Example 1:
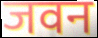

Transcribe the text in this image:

जवन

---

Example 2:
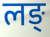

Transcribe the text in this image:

लङ्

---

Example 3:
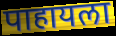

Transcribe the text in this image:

पाहायला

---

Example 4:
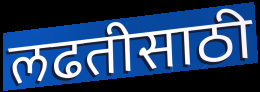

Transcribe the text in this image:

लढतीसाठी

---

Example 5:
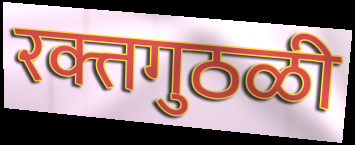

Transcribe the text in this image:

रक्तगुठळी